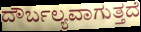
ದೌರ್ಬಲ್ಯವಾಗುತ್ತದೆ